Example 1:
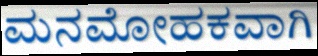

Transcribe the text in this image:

ಮನಮೋಹಕವಾಗಿ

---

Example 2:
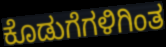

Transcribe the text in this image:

ಕೊಡುಗೆಗಳಿಗಿಂತ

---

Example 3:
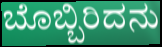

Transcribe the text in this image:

ಬೊಬ್ಬಿರಿದನು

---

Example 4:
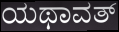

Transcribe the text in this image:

ಯಥಾವತ್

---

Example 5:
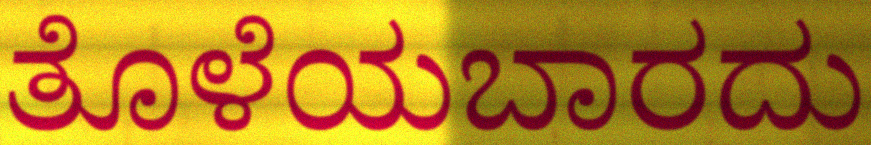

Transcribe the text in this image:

ತೊಳೆಯಬಾರದು